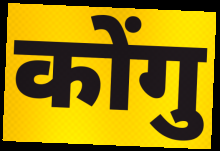
कोंगु